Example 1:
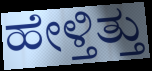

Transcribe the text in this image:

ಹೇಳ್ತಿತ್ತು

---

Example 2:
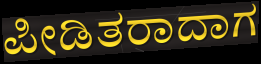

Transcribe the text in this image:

ಪೀಡಿತರಾದಾಗ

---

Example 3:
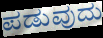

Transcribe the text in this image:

ಪಡುವುದು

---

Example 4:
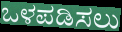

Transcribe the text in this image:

ಒಳಪಡಿಸಲು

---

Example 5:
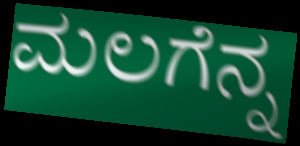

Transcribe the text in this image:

ಮಲಗೆನ್ನ